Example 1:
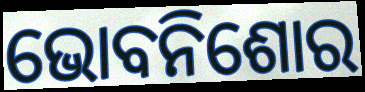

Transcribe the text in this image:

ଭୋବନିଶୋର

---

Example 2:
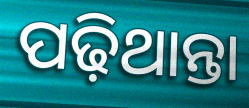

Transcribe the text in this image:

ପଢ଼ିଥାନ୍ତା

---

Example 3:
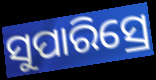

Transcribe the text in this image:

ସୁପାରିସ୍ରେ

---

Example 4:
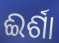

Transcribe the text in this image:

ଈର୍ଶା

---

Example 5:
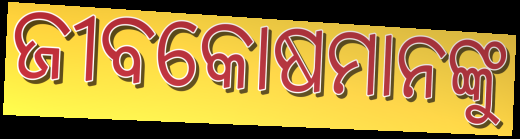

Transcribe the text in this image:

ଜୀବକୋଷମାନଙ୍କୁ